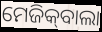
ମେଜିକ୍‍ବାଲା